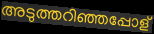
അടുത്തറിഞ്ഞപ്പോള്